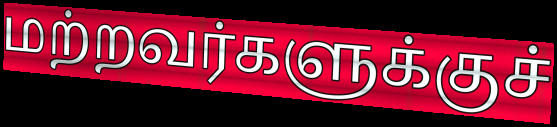
மற்றவர்களுக்குச்